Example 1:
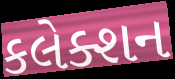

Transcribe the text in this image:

કલેક્શન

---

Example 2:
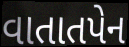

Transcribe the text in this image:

વાતાતપેન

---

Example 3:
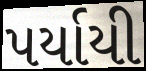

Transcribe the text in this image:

પર્યાયી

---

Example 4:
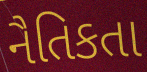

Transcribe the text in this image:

નૈતિકતા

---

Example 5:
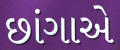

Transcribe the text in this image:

છાંગાએ